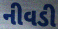
નીવડી